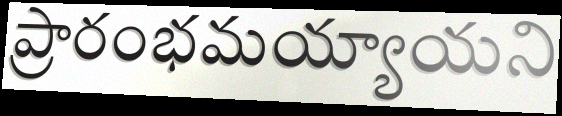
ప్రారంభమయ్యాయని